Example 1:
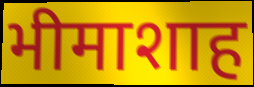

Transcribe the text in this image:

भीमाशाह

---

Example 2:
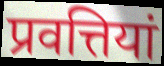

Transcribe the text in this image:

प्रवत्तियां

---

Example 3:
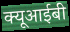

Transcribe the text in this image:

क्यूआईबी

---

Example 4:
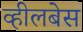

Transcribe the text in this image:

व्हीलबेस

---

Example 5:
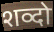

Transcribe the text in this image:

शव्दो